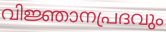
വിജ്ഞാനപ്രദവും